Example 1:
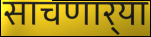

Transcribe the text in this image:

साचणार्‍या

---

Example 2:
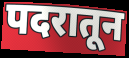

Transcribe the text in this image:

पदरातून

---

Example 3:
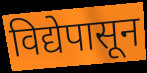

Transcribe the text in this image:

विद्येपासून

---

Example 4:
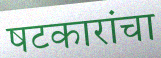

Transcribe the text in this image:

षटकारांचा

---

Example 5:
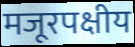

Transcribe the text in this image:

मजूरपक्षीय